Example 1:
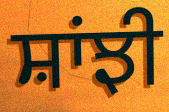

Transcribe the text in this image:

ਸ਼ਾਂਝੀ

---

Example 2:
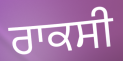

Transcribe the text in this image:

ਰਾਕਸੀ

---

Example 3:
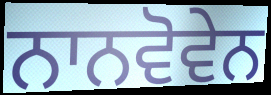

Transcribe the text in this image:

ਨਾਨਵੋਵੇਨ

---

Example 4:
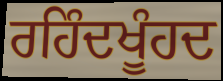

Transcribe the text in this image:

ਰਹਿੰਦਖੂੰਹਦ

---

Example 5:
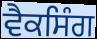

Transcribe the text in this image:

ਵੈਕਸਿੰਗ